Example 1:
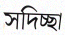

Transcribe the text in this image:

সদিচ্ছা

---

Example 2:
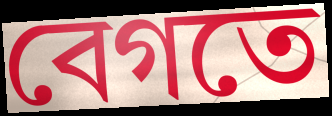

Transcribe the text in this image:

বেগতে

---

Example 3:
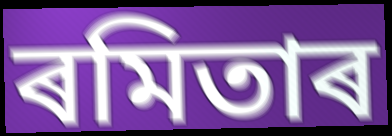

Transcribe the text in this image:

ৰমিতাৰ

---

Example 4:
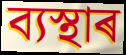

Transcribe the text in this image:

ব্যস্থাৰ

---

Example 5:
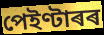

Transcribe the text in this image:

পেইণ্টাৰৰ